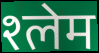
श्लेम